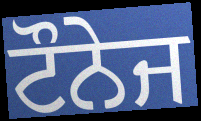
ਟੌਨੇਜ